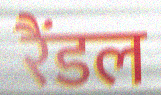
रैंडल